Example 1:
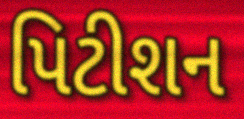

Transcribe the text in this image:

પિટીશન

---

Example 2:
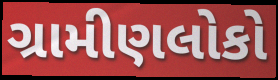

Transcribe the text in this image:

ગ્રામીણલોકો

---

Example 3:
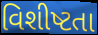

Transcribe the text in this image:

વિશીષ્ટતા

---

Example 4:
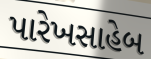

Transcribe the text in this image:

પારેખસાહેબ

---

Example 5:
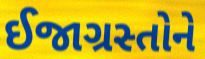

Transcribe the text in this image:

ઈજાગ્રસ્તોને